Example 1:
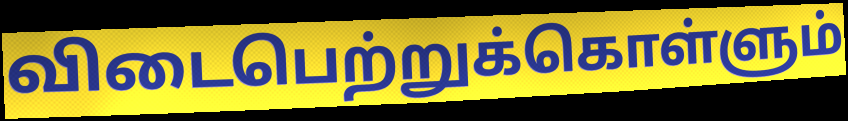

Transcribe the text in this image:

விடைபெற்றுக்கொள்ளும்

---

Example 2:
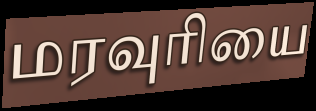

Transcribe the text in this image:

மரவுரியை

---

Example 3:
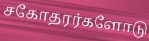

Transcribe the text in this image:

சகோதரர்களோடு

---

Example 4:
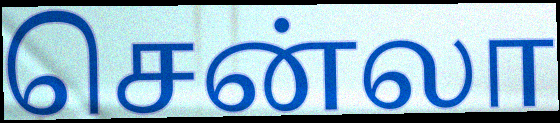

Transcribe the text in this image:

சென்லா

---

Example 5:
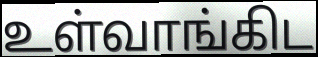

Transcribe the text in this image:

உள்வாங்கிட